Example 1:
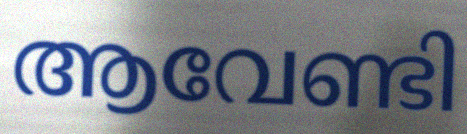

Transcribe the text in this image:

ആവേണ്ടി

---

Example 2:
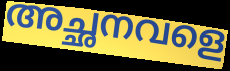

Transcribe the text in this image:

അച്ഛനവളെ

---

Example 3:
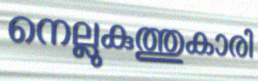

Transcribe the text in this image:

നെല്ലുകുത്തുകാരി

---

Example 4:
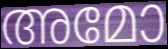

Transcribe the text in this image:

അമോ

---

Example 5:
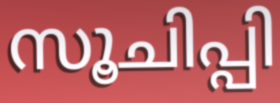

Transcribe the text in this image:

സൂചിപ്പി